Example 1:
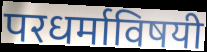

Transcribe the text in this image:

परधर्माविषयी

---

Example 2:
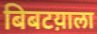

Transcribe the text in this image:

बिबटय़ाला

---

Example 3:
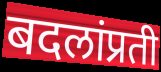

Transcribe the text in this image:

बदलांप्रती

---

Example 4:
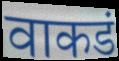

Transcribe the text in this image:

वाकडं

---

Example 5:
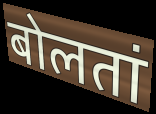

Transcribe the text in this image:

बोलतां